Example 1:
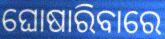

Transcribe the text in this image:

ଘୋଷାରିବାରେ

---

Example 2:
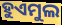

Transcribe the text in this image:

ହୁଏମୁଲ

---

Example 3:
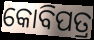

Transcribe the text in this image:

କୋବିପତ୍ର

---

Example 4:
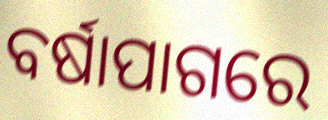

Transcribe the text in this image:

ବର୍ଷାପାଗରେ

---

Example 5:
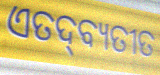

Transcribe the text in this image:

ଏତଦ୍‌ବ୍ୟତୀତ